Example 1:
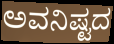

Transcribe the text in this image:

ಅವನಿಷ್ಟದ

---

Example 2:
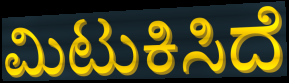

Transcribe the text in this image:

ಮಿಟುಕಿಸಿದೆ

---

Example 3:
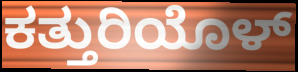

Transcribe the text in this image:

ಕತ್ತುರಿಯೊಳ್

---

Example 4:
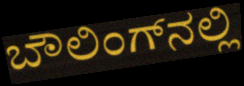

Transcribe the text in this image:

ಬೌಲಿಂಗ್‌ನಲ್ಲಿ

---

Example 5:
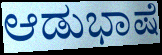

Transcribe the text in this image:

ಆಡುಭಾಷೆ